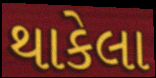
થાકેલા